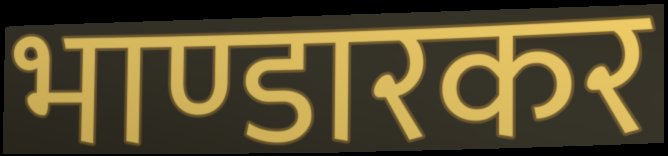
भाण्डारकर